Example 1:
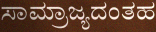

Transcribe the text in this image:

ಸಾಮ್ರಾಜ್ಯದಂತಹ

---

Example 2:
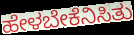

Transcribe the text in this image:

ಹೇಳಬೇಕೆನಿಸಿತು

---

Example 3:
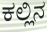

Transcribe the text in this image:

ಕಲ್ಲಿನ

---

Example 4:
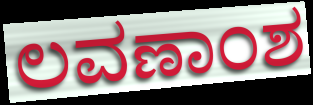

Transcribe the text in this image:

ಲವಣಾಂಶ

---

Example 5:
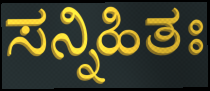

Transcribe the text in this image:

ಸನ್ನಿಹಿತಃ